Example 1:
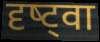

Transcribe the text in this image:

दृष्ट्‍वा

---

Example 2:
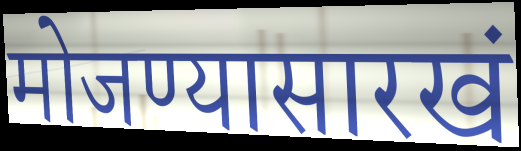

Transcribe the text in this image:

मोजण्यासारखं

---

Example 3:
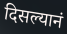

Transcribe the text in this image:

दिसल्यानं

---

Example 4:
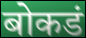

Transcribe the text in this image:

बोकडं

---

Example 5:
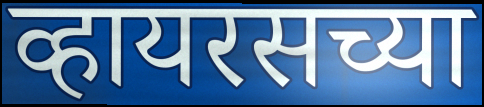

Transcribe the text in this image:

व्हायरसच्या